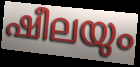
ഷീലയും